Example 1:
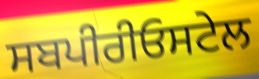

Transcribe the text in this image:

ਸਬਪੀਰੀਓਸਟੇਲ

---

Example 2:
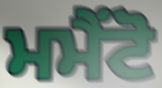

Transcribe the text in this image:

ਮਮੈਂਟੋ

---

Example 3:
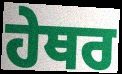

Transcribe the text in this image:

ਹੇਥਰ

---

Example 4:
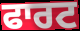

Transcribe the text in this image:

ਫਾਰਟ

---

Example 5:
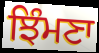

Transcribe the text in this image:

ਝਿੰਮਣਾ